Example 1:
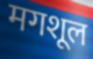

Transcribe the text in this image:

मगशूल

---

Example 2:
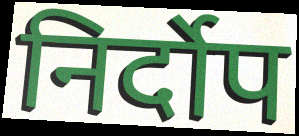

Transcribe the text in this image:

निर्दोप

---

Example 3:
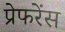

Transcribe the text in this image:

प्रेफरेंस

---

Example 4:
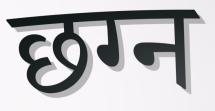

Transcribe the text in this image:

छग्न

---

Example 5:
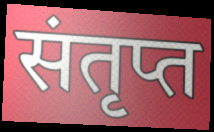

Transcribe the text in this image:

संतृप्त